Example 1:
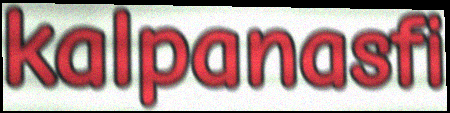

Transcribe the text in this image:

kalpanasfi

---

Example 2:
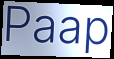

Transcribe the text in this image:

Paap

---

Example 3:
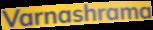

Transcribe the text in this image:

Varnashrama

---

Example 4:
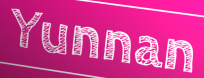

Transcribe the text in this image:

Yunnan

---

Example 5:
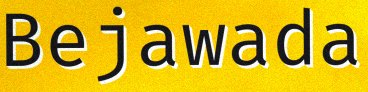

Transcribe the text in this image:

Bejawada